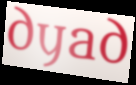
dyad